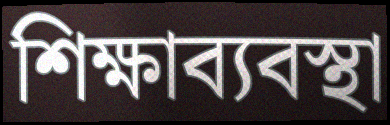
শিক্ষাব্যবস্থা